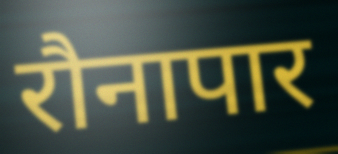
रौनापार